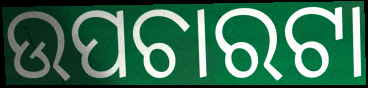
ଉପଚାରଟା